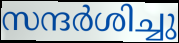
സന്ദർശിച്ചു